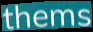
thems